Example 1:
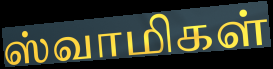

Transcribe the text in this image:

ஸ்வாமிகள்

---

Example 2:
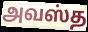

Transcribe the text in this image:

அவஸ்த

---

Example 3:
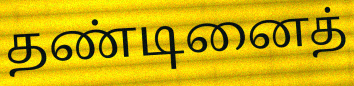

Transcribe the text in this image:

தண்டினைத்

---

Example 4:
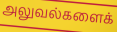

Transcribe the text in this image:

அலுவல்களைக்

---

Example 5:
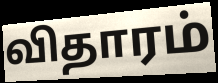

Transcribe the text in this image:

விதாரம்